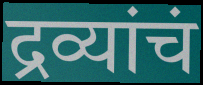
द्रव्यांचं